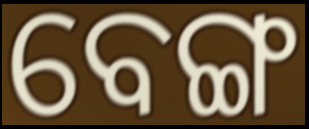
ବେଙ୍ଗ